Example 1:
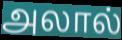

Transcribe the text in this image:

அலால்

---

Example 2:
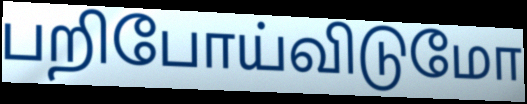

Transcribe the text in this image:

பறிபோய்விடுமோ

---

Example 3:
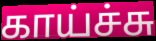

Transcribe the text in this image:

காய்ச்சு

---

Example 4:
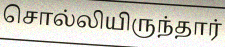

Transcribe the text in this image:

சொல்லியிருந்தார்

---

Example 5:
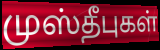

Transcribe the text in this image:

முஸ்தீபுகள்